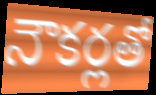
నౌకర్లతో